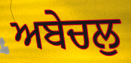
ਅਬੇਚਲੁ